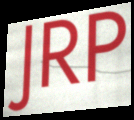
JRP